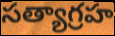
సత్యాగ్రహ